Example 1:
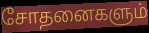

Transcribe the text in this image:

சோதனைகளும்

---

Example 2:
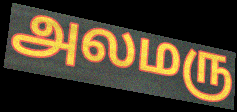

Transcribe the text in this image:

அலமரு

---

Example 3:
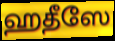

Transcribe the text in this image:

ஹதீஸே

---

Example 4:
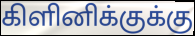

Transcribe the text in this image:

கிளினிக்குக்கு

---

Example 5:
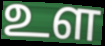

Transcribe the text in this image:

உள